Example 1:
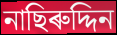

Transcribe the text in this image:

নাছিৰুদ্দিন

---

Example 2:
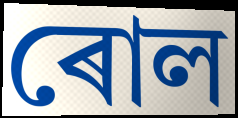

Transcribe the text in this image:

ৰোল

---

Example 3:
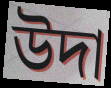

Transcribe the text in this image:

উদা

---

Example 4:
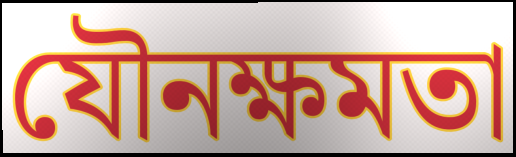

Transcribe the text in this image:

যৌনক্ষমতা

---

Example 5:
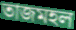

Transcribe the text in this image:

তাজমহল